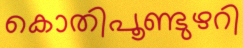
കൊതിപൂണ്ടുഴറി